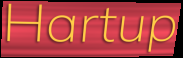
Hartup